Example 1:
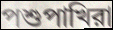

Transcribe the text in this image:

পশুপাখিরা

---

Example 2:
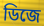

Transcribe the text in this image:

ডিজে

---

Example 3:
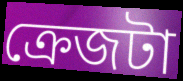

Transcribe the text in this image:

ক্রেজটা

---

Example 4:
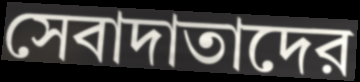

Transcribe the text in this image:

সেবাদাতাদের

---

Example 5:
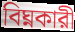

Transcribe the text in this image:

বিঘ্নকারী